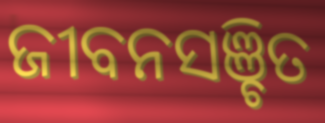
ଜୀବନସଞ୍ଚିତ